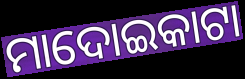
ମାଦୋଇକାଟା